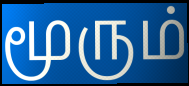
மூரும்